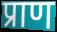
प्राण